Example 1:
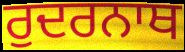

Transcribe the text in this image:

ਰੁਦਰਨਾਥ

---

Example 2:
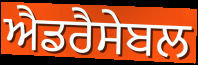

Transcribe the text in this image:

ਐਡਰੈਸੇਬਲ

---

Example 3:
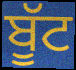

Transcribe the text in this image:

ਬੂੱਟ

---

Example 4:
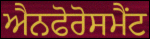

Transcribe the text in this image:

ਐਨਫੋਰੋਸਮੈਂਟ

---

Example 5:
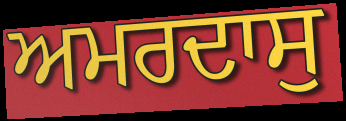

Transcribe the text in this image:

ਅਮਰਦਾਸੁ